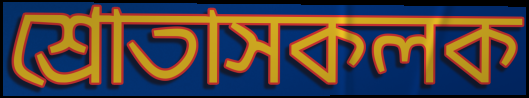
শ্ৰোতাসকলক